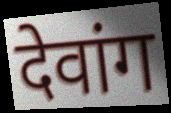
देवांग